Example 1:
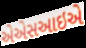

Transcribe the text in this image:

એએસઆઇએ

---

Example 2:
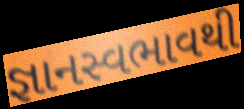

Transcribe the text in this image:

જ્ઞાનસ્વભાવથી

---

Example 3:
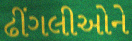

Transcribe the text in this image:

ઢીંગલીઓને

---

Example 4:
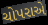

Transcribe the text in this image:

ચોપરાએ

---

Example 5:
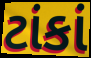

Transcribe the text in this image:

ટાંકાં